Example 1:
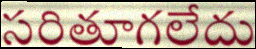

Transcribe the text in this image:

సరితూగలేదు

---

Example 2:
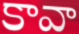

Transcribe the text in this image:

కావా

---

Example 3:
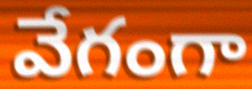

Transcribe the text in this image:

వేగంగా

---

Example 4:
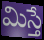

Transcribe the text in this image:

మిస్తే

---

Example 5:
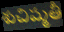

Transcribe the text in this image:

శుచిష్మతీ